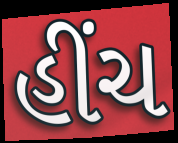
હીંચ